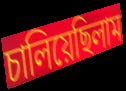
চালিয়েছিলাম